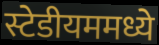
स्टेडीयममध्ये